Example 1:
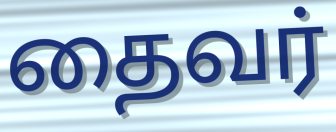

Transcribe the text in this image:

தைவர்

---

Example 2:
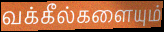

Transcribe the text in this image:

வக்கீல்களையும்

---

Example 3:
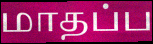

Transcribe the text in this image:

மாதப்ப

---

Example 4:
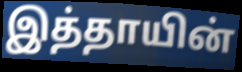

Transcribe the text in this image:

இத்தாயின்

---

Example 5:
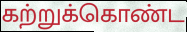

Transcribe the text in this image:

கற்றுக்கொண்ட